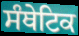
ਸੰਥੇਟਿਕ